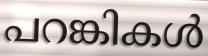
പറങ്കികൾ